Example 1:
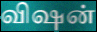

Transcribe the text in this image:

விஷன்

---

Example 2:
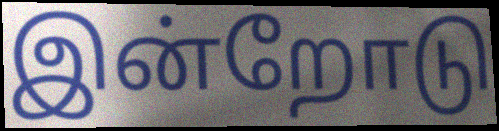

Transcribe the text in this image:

இன்றோடு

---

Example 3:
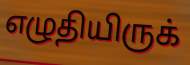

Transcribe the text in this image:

எழுதியிருக்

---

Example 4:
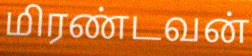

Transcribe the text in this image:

மிரண்டவன்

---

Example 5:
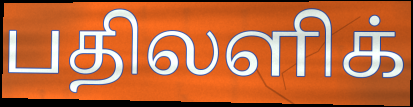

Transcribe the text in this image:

பதிலளிக்